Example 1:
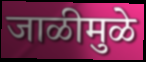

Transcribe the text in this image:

जाळीमुळे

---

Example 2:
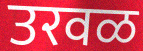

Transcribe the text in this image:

उरवळ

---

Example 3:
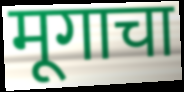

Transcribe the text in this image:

मूगाचा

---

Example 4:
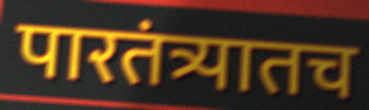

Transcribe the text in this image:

पारतंत्र्यातच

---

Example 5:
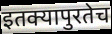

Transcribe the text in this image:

इतक्यापुरतेच